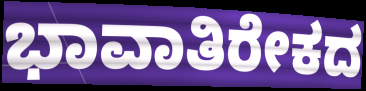
ಭಾವಾತಿರೇಕದ